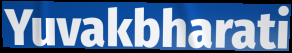
Yuvakbharati